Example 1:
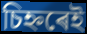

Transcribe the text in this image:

চিহ্নৰেই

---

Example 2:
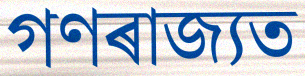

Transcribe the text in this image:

গণৰাজ্যত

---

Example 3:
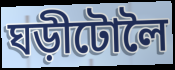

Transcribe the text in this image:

ঘড়ীটোলৈ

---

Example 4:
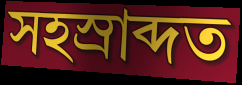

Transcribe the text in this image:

সহস্ৰাব্দত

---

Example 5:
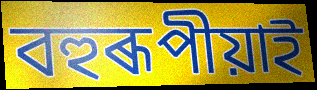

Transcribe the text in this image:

বহুৰূপীয়াই